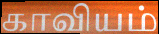
காவியம்